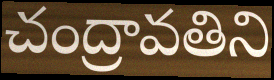
చంద్రావతిని